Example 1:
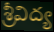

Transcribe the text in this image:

శ్రీవిద్య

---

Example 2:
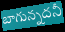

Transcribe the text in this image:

బాగున్నదనీ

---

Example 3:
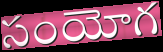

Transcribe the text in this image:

సంయోగ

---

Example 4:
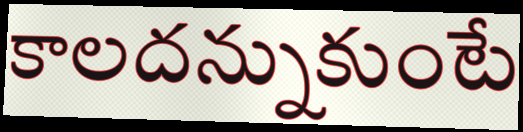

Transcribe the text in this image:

కాలదన్నుకుంటే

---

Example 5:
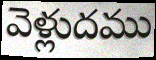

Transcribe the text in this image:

వెళ్లుదము